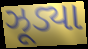
ઝૂડ્યા